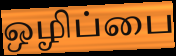
ஒழிப்பை